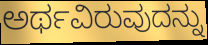
ಅರ್ಥವಿರುವುದನ್ನು